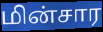
மின்சார